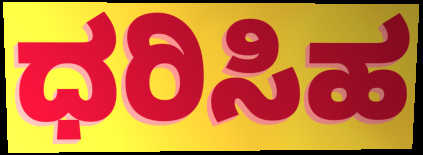
ಧರಿಸಿಹ